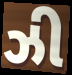
ઝી